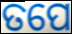
ତପେ